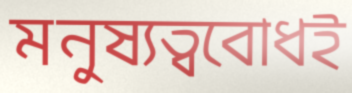
মনুষ্যত্ববোধই